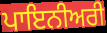
ਪਾਇਨੀਅਰੀ